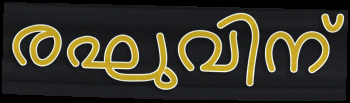
രഘുവിന്